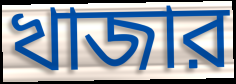
খাজার